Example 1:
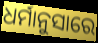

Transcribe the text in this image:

ଧର୍ମାନୁସାରେ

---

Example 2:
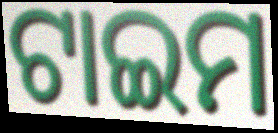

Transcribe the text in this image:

ଟାଇମ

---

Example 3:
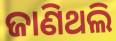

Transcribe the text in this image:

ଜାଣିଥଲି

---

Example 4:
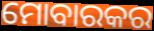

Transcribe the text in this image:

ମୋବାରକର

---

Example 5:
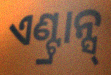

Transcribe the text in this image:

ଏଣ୍ଟ୍ରାନ୍ସ୍